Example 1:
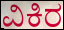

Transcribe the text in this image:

ವಿಕಿರ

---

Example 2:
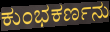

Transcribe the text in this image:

ಕುಂಭಕರ್ಣನು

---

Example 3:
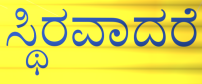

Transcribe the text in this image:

ಸ್ಥಿರವಾದರೆ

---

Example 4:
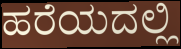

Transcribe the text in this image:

ಹರೆಯದಲ್ಲಿ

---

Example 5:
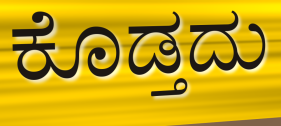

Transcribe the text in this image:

ಕೊಡ್ತದು